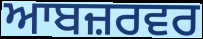
ਆਬਜ਼ਰਵਰ